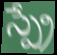
స్ప్రే